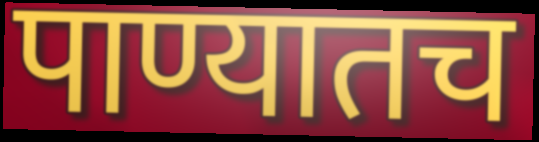
पाण्यातच